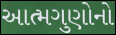
આત્મગુણોનો